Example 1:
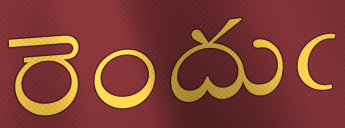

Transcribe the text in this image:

రెందుఁ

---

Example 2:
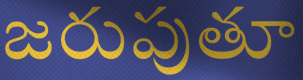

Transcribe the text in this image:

జరుపుతూ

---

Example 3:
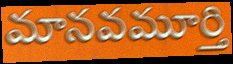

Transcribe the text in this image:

మానవమూర్తి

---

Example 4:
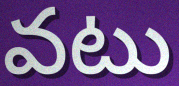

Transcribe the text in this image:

వటు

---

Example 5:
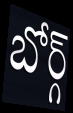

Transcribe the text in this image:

బోర్గ్